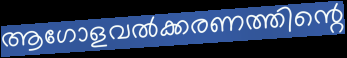
ആഗോളവൽക്കരണത്തിന്റെ